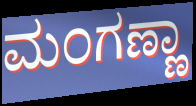
ಮಂಗಣ್ಣಾ